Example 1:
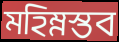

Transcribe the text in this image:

মহিম্নস্তব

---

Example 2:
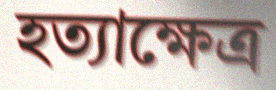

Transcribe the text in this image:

হত্যাক্ষেত্র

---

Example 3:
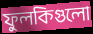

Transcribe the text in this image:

ফুলকিগুলো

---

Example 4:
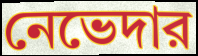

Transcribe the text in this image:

নেভেদার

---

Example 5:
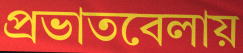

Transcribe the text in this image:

প্রভাতবেলায়